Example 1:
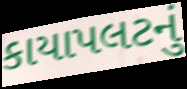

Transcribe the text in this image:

કાયાપલટનું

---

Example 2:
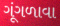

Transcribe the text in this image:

ગૂંગળાવા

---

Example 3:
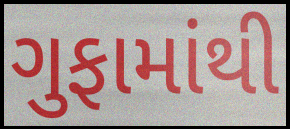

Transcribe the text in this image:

ગુફામાંથી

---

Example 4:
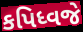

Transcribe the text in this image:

કપિધ્વજે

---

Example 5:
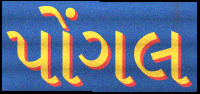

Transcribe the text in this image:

પોંગલ